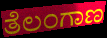
ತೆಲಂಗಾಣ